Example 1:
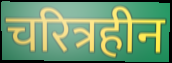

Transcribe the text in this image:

चरित्रहीन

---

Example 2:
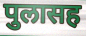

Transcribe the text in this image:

पुलासह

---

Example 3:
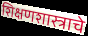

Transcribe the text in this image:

शिक्षणशास्त्राचे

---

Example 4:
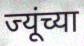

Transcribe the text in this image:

ज्यूंच्या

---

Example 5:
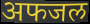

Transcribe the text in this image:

अफजल